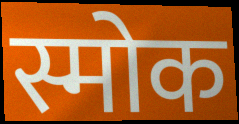
स्मोक